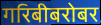
गरिबीबरोबर